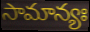
సామాన్యః